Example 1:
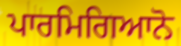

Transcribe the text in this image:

ਪਾਰਮਿਗਿਆਨੋ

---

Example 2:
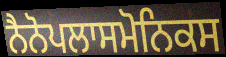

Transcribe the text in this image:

ਨੈਨੋਪਲਾਸਮੋਨਿਕਸ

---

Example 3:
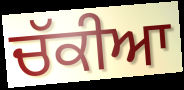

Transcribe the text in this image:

ਚੱਕੀਆ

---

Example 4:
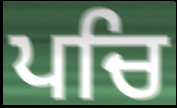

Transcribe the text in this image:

ਪਚਿ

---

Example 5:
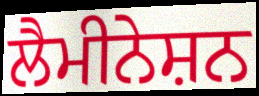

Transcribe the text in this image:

ਲੈਮੀਨੇਸ਼ਨ